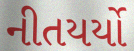
નીતયર્યો